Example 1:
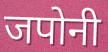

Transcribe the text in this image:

जपोनी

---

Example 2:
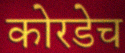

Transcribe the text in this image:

कोरडेच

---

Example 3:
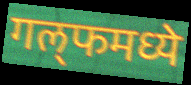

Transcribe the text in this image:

गल्फमध्ये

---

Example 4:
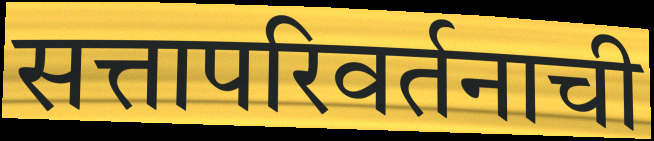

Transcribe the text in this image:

सत्तापरिवर्तनाची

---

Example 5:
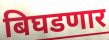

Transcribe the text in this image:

बिघडणार